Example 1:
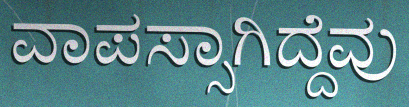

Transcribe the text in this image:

ವಾಪಸ್ಸಾಗಿದ್ದೆವು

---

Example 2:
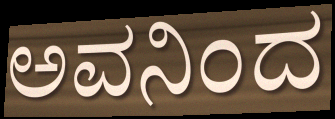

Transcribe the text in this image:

ಅವನಿಂದ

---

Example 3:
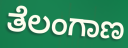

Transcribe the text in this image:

ತೆಲಂಗಾಣ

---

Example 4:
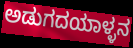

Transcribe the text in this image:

ಅಡುಗದಯಾಳ್ಳನ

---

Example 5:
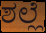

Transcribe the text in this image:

ಶಲ್ಲೆ